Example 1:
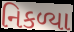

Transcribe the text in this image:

નિકળ્યા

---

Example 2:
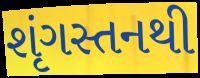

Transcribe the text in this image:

શૃંગસ્તનથી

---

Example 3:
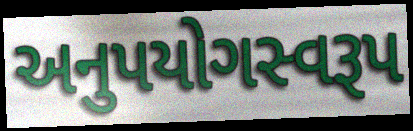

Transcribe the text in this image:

અનુપયોગસ્વરૂપ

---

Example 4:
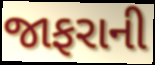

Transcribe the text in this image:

જાફરાની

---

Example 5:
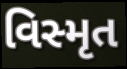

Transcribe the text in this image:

વિસ્મૃત